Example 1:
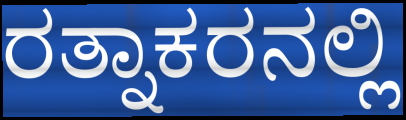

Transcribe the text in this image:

ರತ್ನಾಕರನಲ್ಲಿ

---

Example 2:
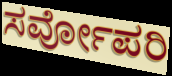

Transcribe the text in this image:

ಸರ್ವೋಪರಿ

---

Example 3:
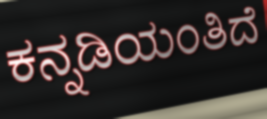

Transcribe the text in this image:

ಕನ್ನಡಿಯಂತಿದೆ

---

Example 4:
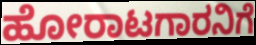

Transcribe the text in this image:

ಹೋರಾಟಗಾರನಿಗೆ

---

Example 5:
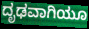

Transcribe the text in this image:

ದೃಢವಾಗಿಯೂ